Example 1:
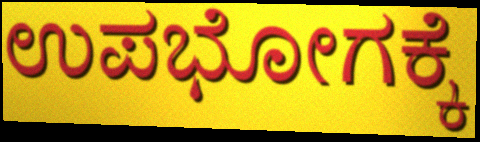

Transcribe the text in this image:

ಉಪಭೋಗಕ್ಕೆ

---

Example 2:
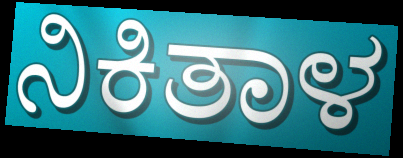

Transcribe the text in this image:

ನಿಕಿತಾಳ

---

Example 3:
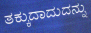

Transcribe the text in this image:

ತಕ್ಕುದಾದುದನ್ನು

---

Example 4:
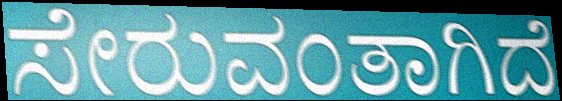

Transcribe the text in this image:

ಸೇರುವಂತಾಗಿದೆ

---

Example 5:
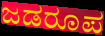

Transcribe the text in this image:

ಜಡರೂಪ